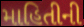
માહિતીની